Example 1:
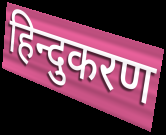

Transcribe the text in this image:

हिन्दुकरण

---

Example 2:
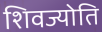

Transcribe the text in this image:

शिवज्योति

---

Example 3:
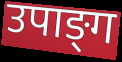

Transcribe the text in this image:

उपाङ्ग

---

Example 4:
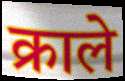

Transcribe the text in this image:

क्राले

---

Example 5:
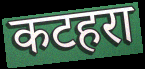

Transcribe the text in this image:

कटहरा